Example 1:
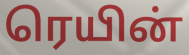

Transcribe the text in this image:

ரெயின்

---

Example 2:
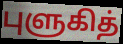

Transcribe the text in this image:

புளுகித்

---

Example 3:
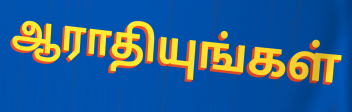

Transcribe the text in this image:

ஆராதியுங்கள்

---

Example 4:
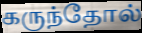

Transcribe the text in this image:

கருந்தோல்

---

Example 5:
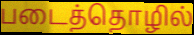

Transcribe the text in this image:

படைத்தொழில்